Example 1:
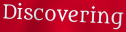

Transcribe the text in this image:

Discovering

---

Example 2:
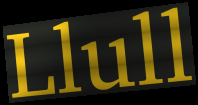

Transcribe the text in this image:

Llull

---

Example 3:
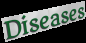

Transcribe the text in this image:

Diseases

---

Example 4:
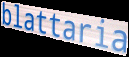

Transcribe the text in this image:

blattaria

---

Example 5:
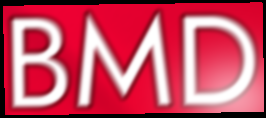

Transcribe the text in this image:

BMD